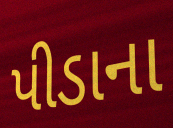
પીડાના